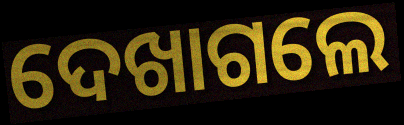
ଦେଖାଗଲେ